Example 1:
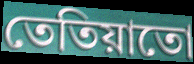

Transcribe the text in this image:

তেতিয়াতো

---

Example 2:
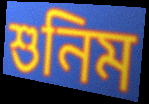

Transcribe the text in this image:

শুনিম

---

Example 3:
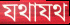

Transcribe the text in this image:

যথাযথ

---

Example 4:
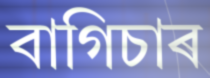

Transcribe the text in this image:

বাগিচাৰ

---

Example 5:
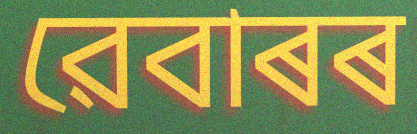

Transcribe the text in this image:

ৱেবাৰৰ